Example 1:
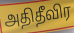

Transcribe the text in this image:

அதிதீவிர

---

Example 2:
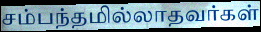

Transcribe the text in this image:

சம்பந்தமில்லாதவர்கள்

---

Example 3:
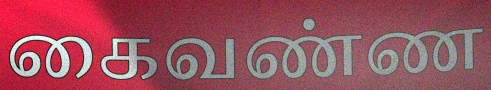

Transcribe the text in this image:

கைவண்ண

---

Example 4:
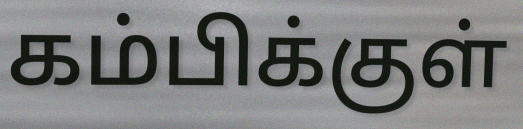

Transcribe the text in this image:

கம்பிக்குள்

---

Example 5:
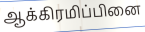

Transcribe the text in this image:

ஆக்கிரமிப்பினை